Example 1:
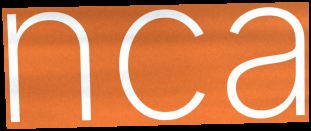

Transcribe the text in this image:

nca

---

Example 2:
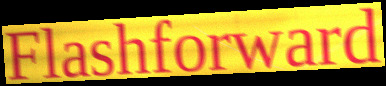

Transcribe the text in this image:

Flashforward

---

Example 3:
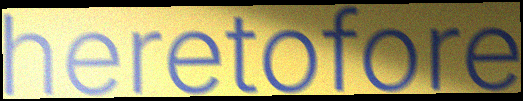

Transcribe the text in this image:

heretofore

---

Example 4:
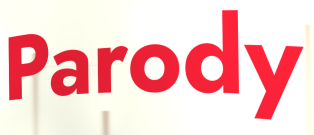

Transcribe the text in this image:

Parody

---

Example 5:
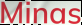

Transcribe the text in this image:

Minas